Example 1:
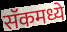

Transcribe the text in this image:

सॅकमध्ये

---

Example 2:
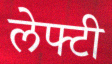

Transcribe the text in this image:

लेफ्टी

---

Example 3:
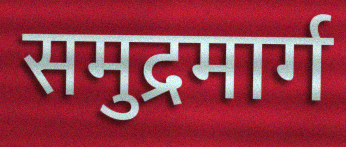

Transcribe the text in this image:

समुद्रमार्ग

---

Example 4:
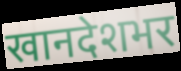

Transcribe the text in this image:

खानदेशभर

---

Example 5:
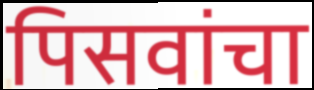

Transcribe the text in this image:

पिसवांचा